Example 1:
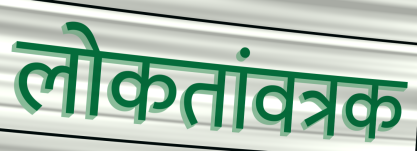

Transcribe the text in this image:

लोकतांवत्रक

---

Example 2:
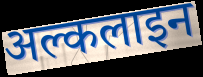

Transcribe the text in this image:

अल्कलाइन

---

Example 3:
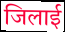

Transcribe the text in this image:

जिलाई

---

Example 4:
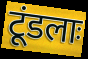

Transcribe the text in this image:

टूंडलाः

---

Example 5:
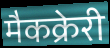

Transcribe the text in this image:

मैकक्रेरी